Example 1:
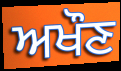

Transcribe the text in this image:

ਅਖੌਣ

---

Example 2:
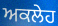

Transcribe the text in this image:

ਅਕਲੇਹ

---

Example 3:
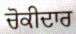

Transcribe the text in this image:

ਚੋਕੀਦਾਰ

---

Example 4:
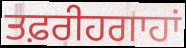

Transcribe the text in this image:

ਤਫ਼ਰੀਹਗਾਹਾਂ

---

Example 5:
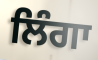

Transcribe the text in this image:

ਲਿੰਗਾ